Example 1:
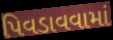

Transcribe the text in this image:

પિવડાવવામાં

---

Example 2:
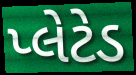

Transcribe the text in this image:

પ્લેટેડ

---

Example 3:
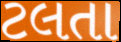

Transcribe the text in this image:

ટલતા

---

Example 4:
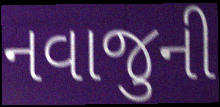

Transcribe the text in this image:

નવાજુની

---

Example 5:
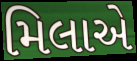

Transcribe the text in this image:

મિલાએ